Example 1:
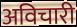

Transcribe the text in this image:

अविचारी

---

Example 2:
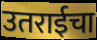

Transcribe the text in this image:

उतराईचा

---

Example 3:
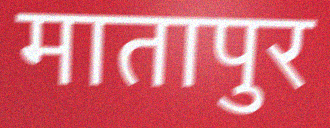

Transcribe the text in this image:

मातापुर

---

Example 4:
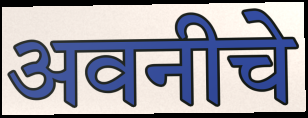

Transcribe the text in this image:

अवनीचे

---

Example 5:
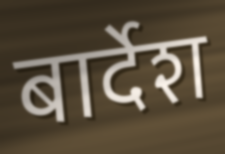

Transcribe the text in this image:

बार्देश